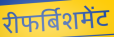
रीफर्बिशमेंट